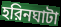
হরিনঘাটা